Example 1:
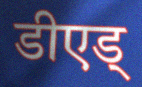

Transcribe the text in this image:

डीएड्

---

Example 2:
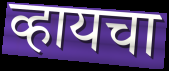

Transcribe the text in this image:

व्हायचा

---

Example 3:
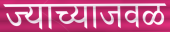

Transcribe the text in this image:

ज्याच्याजवळ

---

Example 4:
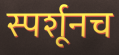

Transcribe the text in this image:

स्पर्शूनच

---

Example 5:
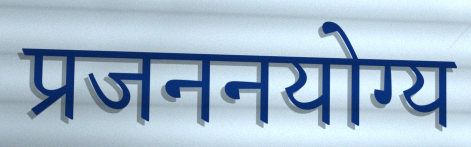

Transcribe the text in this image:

प्रजननयोग्य